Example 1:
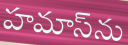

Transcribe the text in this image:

హమాస్‌ను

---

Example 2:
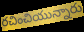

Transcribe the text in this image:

రచించియున్నారు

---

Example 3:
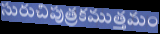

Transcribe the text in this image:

సురుచిపుత్రకముత్తమం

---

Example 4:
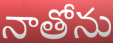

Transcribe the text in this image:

నాతోను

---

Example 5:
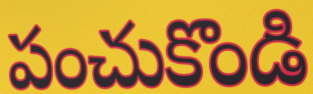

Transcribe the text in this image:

పంచుకొండి